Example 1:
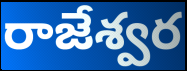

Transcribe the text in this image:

రాజేశ్వర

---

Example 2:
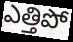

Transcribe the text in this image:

ఎత్తిపో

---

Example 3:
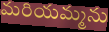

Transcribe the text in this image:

మరియమ్మను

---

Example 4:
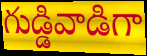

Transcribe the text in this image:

గుడ్డివాడిగా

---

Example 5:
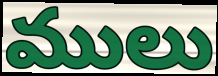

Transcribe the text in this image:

ములు